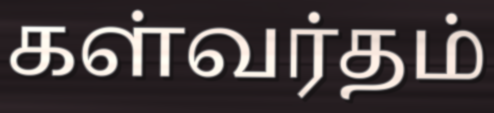
கள்வர்தம்